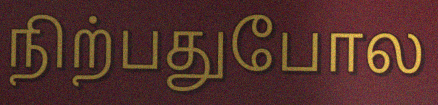
நிற்பதுபோல